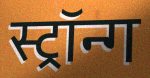
स्ट्रॉन्ग